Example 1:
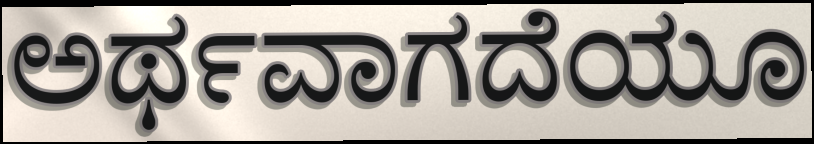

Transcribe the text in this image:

ಅರ್ಥವಾಗದೆಯೂ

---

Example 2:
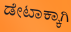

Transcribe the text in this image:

ಡೇಟಾಕ್ಕಾಗಿ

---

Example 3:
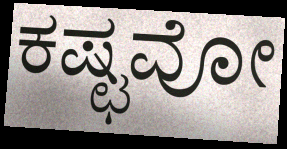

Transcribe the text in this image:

ಕಷ್ಟವೋ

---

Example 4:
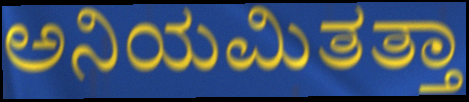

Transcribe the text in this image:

ಅನಿಯಮಿತತ್ತಾ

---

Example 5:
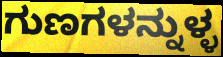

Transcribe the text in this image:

ಗುಣಗಳನ್ನುಳ್ಳ